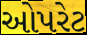
ઓપરેટ